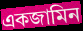
একজামিন